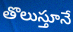
తొలుస్తూనే